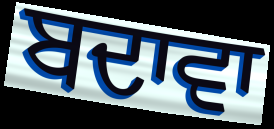
ਬਦਾਵਾ